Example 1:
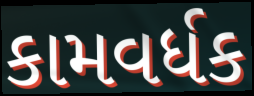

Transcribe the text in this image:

કામવર્ધક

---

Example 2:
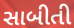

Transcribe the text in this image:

સાબીતી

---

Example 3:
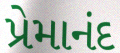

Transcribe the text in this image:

પ્રેમાનંદ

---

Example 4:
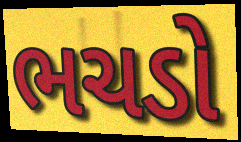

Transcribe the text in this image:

ભચડો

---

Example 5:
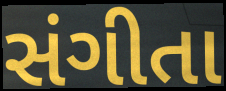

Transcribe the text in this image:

સંગીતા